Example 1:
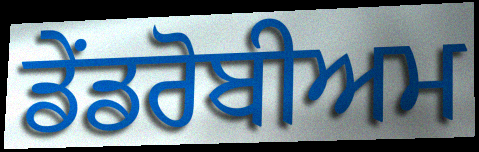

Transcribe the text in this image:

ਡੇਂਡਰੋਬੀਅਮ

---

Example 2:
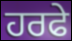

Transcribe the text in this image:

ਹਰਫੇ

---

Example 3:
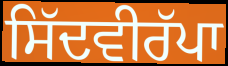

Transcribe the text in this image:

ਸਿੱਦਵੀਰੱਪਾ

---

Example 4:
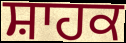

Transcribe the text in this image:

ਸ਼ਾਹਕ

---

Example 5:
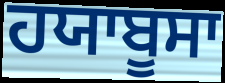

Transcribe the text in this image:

ਹਯਾਬੂਸਾ